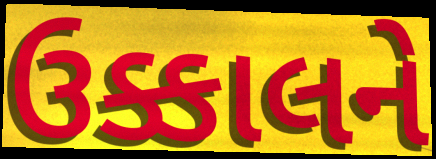
ઉક્કાલને